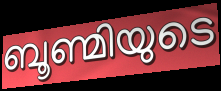
ബൂണ്മിയുടെ